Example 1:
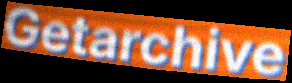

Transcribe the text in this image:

Getarchive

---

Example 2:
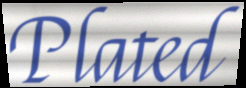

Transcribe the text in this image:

Plated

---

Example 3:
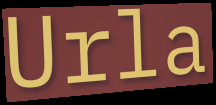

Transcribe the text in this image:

Urla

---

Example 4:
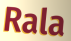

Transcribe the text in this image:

Rala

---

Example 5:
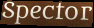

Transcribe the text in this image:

Spector